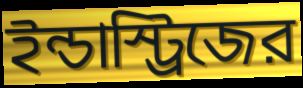
ইন্ডাস্ট্রিজের